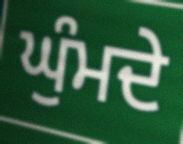
ਘੁੰਮਦੇ